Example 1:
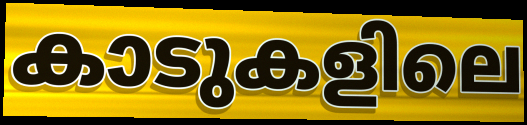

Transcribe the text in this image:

കാടുകളിലെ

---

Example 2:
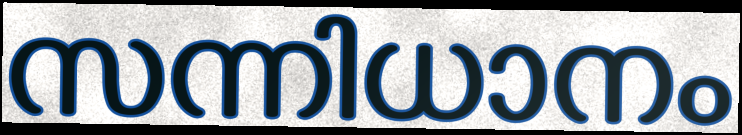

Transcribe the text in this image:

സന്നിധാനം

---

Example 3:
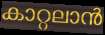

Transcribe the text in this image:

കാറ്റലാൻ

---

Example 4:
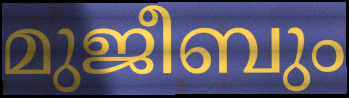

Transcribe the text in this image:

മുജീബും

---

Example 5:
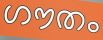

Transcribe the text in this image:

ഗൗതം